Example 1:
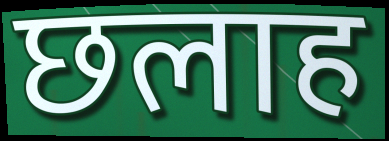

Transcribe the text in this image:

छलाह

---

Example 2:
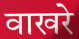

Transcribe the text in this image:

वाखरे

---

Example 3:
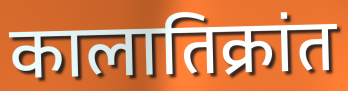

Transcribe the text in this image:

कालातिक्रांत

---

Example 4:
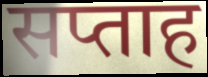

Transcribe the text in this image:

सप्‍ताह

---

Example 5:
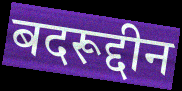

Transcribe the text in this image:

बदरूद्दीन